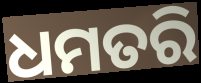
ଧମତରି